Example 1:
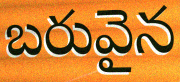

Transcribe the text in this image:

బరువైన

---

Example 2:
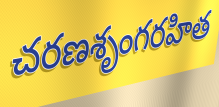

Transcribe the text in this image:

చరణశృంగరహిత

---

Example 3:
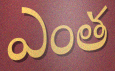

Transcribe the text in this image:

ఎంత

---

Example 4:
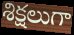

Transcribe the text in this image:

శిక్షలుగా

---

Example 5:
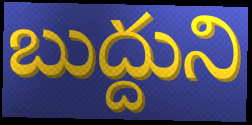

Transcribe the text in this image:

బుద్దుని